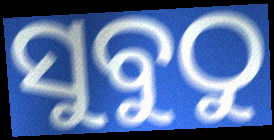
ସୁବୁଠୁ